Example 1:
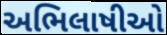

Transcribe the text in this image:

અભિલાષીઓ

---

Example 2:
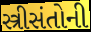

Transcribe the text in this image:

સ્ત્રીસંતોની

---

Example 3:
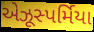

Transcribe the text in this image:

એઝૂસ્પર્મિયા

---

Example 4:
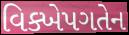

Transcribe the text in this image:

વિક્ખેપગતેન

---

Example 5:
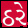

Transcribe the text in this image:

ઠરે